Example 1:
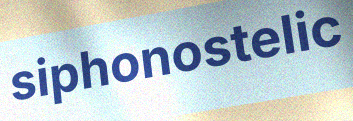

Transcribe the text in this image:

siphonostelic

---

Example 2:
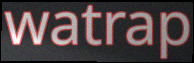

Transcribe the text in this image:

watrap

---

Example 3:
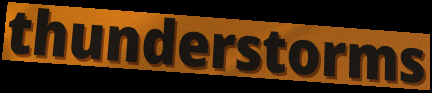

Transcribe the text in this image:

thunderstorms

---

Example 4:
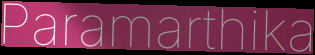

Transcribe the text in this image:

Paramarthika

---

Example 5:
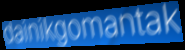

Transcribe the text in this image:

dainikgomantak